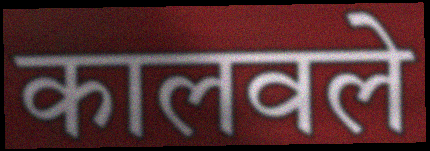
कालवले